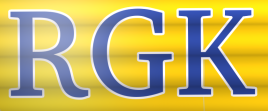
RGK